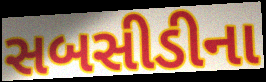
સબસીડીના